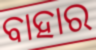
ବାହାର